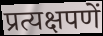
प्रत्यक्षपणें